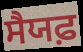
ਸੈਯਫ਼